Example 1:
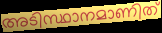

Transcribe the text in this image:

അടിസ്ഥാനമാണിത്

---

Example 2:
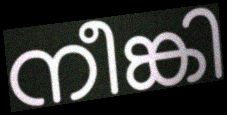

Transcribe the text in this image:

നീങ്കി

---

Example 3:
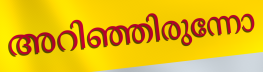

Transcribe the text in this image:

അറിഞ്ഞിരുന്നോ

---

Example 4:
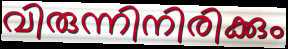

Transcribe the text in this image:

വിരുന്നിനിരിക്കും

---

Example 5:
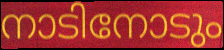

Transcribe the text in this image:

നാടിനോടും